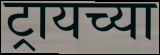
ट्रायच्या